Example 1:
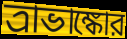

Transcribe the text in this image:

ত্রাভাঙ্কোর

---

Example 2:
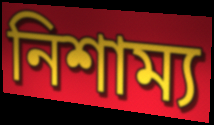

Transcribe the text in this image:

নিশাম্য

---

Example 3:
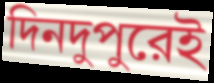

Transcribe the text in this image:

দিনদুপুরেই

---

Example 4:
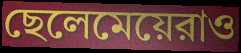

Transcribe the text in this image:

ছেলেমেয়েরাও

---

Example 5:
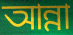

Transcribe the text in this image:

আন্না